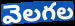
వెలగల